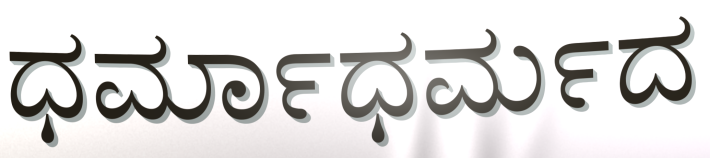
ಧರ್ಮಾಧರ್ಮದ